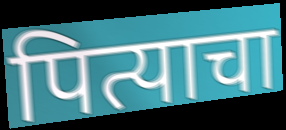
पित्याचा